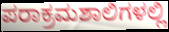
ಪರಾಕ್ರಮಶಾಲಿಗಳಲ್ಲಿ